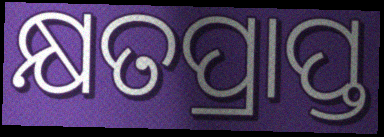
କ୍ଷତପ୍ରାପ୍ତ